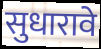
सुधारावे